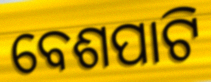
ବେଶପାଟି